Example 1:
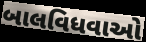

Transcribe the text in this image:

બાલવિધવાઓ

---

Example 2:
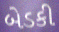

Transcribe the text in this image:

બેડકી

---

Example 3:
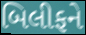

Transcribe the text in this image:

બિલીફને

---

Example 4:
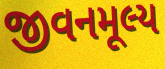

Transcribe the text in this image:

જીવનમૂલ્ય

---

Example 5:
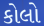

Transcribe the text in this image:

કોલો